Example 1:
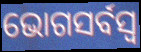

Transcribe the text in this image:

ଭୋଗସର୍ବସ୍ୱ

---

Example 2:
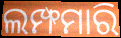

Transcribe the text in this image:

ଲମ୍ଫମାରି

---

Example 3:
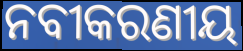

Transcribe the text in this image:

ନବୀକରଣୀୟ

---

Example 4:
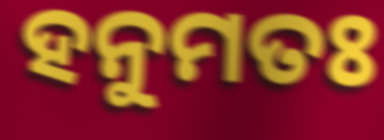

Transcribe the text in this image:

ହନୁମତଃ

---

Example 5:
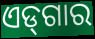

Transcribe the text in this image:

ଏଡ୍‌ଗାର